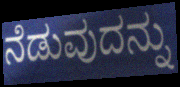
ನೆಡುವುದನ್ನು